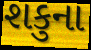
શકુના